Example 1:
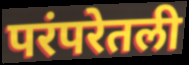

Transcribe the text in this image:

परंपरेतली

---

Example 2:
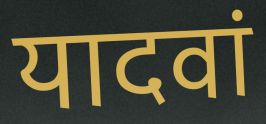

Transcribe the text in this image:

यादवां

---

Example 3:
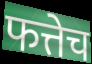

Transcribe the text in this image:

फत्तेच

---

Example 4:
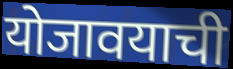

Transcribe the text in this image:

योजावयाची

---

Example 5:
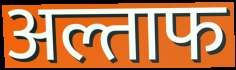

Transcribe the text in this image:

अल्ताफ